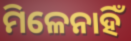
ମିଳେନାହିଁ